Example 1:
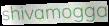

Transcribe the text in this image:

shivamogga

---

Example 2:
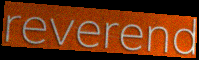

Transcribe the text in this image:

reverend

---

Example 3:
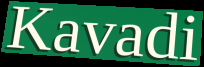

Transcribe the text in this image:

Kavadi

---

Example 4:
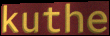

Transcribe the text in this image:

kuthe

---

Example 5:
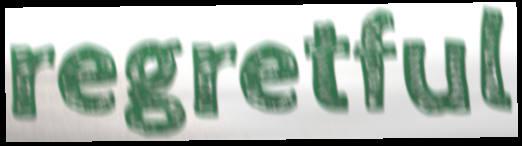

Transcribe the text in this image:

regretful